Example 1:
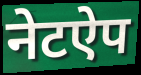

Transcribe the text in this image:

नेटऐप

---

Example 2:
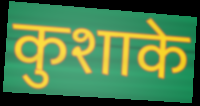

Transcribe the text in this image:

कुशाके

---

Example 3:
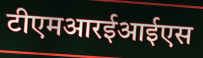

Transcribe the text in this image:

टीएमआरईआईएस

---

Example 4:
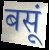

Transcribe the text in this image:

बसूं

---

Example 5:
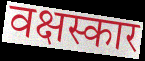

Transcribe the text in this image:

वक्षस्कार